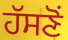
ਹੱਸਣੋਂ